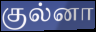
குல்னா